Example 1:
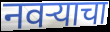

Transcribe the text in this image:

नवऱ्याचा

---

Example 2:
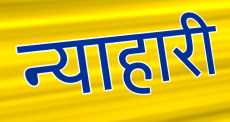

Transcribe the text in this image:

न्याहारी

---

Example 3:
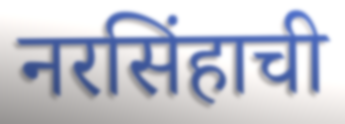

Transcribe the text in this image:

नरसिंहाची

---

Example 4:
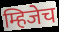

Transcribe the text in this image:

म्हिजेच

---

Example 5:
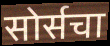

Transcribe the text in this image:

सोर्सचा